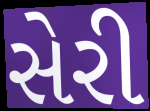
સેરી